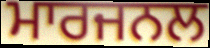
ਮਾਰਜਨਲ